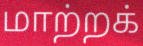
மாற்றக்